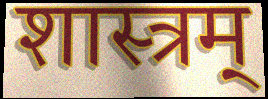
शास्त्रम्